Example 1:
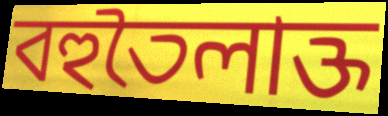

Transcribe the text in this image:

বহুতৈলাক্ত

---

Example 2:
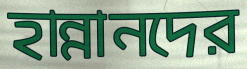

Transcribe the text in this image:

হান্নানদের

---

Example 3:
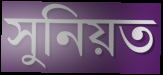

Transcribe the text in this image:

সুনিয়ত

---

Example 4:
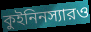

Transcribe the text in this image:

কুইনিনস্যারও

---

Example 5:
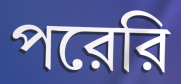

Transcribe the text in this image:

পরেরি